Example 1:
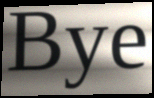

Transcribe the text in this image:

Bye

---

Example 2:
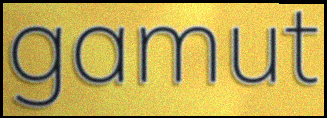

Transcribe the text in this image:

gamut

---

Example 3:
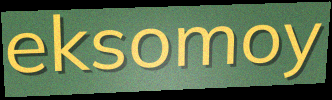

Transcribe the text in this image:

eksomoy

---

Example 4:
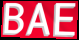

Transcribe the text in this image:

BAE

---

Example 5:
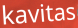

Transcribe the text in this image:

kavitas